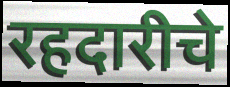
रहदारीचे